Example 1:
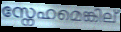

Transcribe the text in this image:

സ്നേഹമെങ്കില്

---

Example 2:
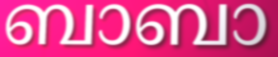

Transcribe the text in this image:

ബാബാ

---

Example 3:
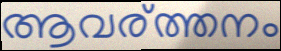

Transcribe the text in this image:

ആവര്ത്തനം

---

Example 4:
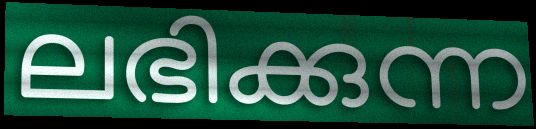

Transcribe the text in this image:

ലഭിക്കുന്ന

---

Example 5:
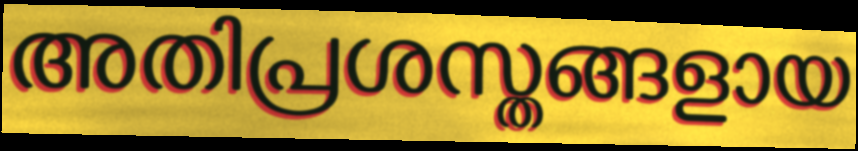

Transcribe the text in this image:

അതിപ്രശസ്തങ്ങളായ